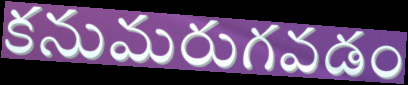
కనుమరుగవడం